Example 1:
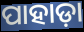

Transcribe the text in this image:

ପାହାଡ଼ା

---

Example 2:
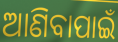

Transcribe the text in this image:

ଆଣିବାପାଇଁ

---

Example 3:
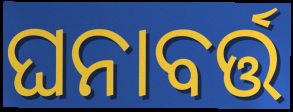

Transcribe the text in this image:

ଘନାବର୍ତ୍ତ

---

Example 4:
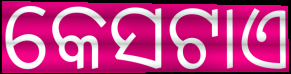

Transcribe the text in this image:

କେସଟାଏ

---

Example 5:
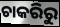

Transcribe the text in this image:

ଚାକରିରୁ